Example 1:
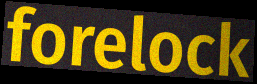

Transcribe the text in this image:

forelock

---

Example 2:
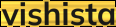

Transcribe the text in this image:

vishista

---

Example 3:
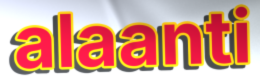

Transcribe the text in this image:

alaanti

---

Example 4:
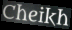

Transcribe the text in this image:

Cheikh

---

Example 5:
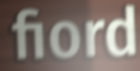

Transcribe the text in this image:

fiord